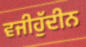
ਵਜੀਹੁੱਦੀਨ